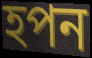
হপন